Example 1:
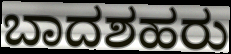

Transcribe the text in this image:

ಬಾದಶಹರು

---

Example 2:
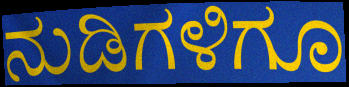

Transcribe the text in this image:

ನುಡಿಗಳಿಗೂ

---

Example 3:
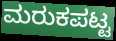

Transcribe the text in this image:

ಮರುಕಪಟ್ಟ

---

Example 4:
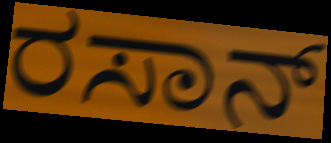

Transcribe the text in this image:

ರಸಾನ್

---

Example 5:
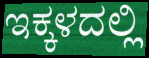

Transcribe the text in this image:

ಇಕ್ಕಳದಲ್ಲಿ